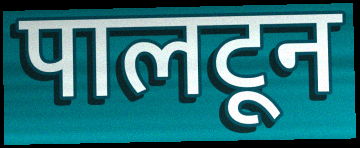
पालटून